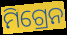
ମିଗ୍ରେନ